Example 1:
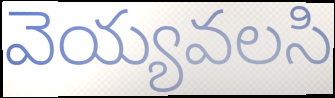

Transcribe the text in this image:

వెయ్యవలసి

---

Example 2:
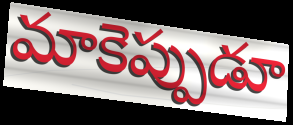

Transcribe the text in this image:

మాకెప్పుడూ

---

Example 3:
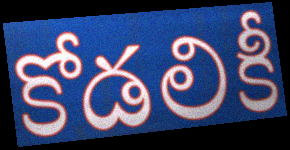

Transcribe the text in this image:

కోడలికీ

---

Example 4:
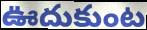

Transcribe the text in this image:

ఊదుకుంట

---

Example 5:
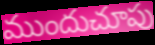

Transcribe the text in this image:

ముందుచూపు